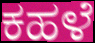
ಕಹಳೆ